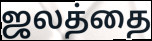
ஜலத்தை